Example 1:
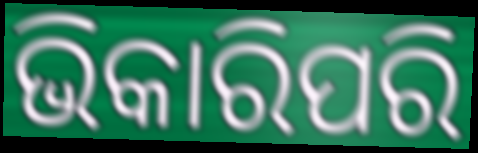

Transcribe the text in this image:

ଭିକାରିପରି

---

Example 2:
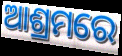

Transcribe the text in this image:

ଆଶ୍ରମରେ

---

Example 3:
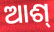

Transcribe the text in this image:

ଆଶ୍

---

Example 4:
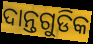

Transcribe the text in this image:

ଦାନ୍ତଗୁଡିକ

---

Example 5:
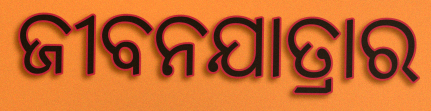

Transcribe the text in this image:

ଜୀବନଯାତ୍ରାର